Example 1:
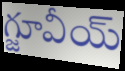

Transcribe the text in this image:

గ్జూవీయ్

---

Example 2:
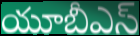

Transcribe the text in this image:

యూబీఎస్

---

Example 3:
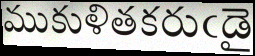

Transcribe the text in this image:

ముకుళితకరుఁడై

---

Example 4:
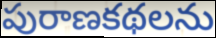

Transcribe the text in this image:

పురాణకథలను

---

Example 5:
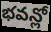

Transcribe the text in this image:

భవన్లో